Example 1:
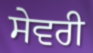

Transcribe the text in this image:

ਸੇਵਰੀ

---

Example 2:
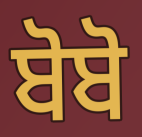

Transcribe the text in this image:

ਬੋਬੋ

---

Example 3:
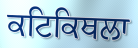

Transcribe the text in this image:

ਕਟਿਕਿਥਲਾ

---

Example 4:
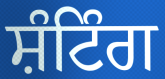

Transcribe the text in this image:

ਸ਼ੰਟਿੰਗ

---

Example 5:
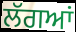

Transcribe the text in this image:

ਲੱਗਆਂ